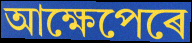
আক্ষেপেৰে